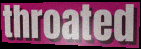
throated